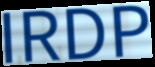
IRDP